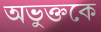
অভুক্তকে